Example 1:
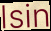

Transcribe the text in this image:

Isin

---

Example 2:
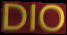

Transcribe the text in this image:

DIO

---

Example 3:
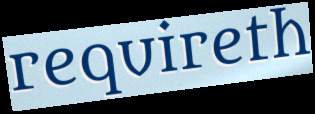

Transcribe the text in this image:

requireth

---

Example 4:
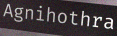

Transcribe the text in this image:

Agnihothra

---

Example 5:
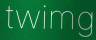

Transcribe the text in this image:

twimg